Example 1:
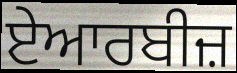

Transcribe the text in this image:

ਏਆਰਬੀਜ਼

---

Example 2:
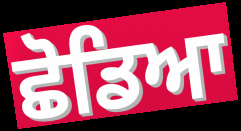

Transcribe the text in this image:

ਛੋਡਿਆ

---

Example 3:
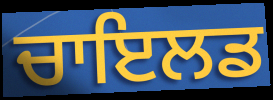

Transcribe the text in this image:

ਚਾਇਲਡ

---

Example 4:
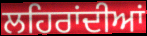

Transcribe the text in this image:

ਲਹਿਰਾਂਦੀਆਂ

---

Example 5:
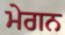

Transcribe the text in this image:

ਮੇਗਨ